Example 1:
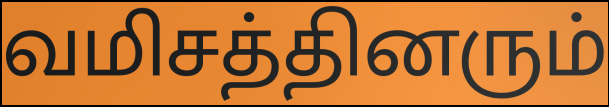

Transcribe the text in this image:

வமிசத்தினரும்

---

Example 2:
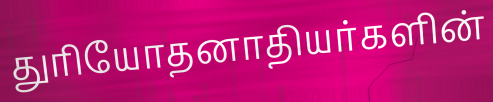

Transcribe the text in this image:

துரியோதனாதியர்களின்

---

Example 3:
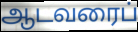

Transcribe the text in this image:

ஆடவரைப்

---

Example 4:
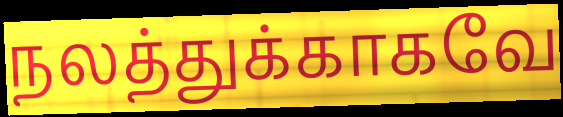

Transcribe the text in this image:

நலத்துக்காகவே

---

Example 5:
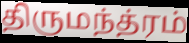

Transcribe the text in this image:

திருமந்த்ரம்